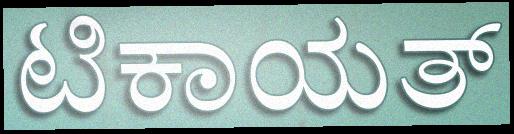
ಟಿಕಾಯತ್